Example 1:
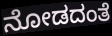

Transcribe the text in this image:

ನೋಡದಂತೆ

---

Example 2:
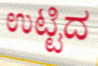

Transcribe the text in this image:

ಉಟ್ಟಿದ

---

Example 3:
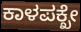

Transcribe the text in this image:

ಕಾಳಪಕ್ಖೇ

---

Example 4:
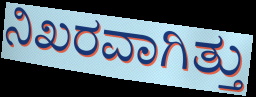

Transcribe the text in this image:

ನಿಖರವಾಗಿತ್ತು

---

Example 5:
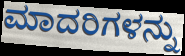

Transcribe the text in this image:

ಮಾದರಿಗಳನ್ನು